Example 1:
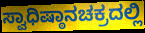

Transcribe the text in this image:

ಸ್ವಾಧಿಷ್ಠಾನಚಕ್ರದಲ್ಲಿ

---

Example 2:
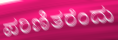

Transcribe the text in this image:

ಪರಿಣಿತರೆಂದು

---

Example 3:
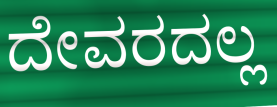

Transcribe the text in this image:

ದೇವರದಲ್ಲ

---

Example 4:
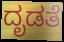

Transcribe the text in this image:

ದೃಡತೆ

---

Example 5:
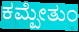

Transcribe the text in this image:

ಕಮ್ಪೇತುಂ